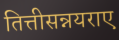
तित्तीसन्नयराए